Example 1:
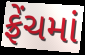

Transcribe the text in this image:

ફ્રેંચમાં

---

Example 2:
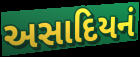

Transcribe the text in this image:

અસાદિયનં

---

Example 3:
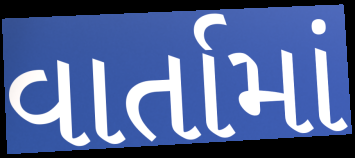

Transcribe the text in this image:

વાર્તામાં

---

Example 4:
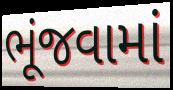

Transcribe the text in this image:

ભૂંજવામાં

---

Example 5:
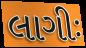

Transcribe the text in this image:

લાગીઃ